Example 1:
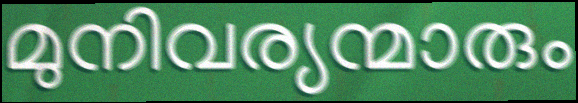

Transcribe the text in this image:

മുനിവര്യന്മാരും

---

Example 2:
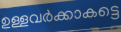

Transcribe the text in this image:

ഉള്ളവർക്കാകട്ടെ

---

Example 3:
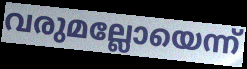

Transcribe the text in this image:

വരുമല്ലോയെന്ന്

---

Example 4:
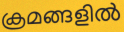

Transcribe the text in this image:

ക്രമങ്ങളിൽ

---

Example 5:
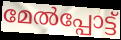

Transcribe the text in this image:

മേൽപ്പോട്ട്